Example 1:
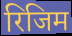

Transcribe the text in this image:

रिजिम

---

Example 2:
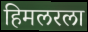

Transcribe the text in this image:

हिमलरला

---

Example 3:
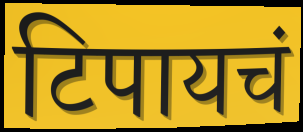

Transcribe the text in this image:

टिपायचं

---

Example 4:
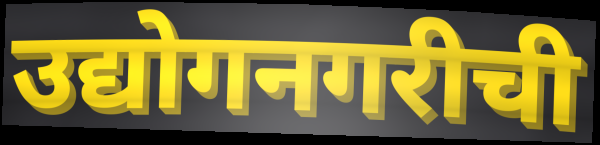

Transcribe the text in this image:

उद्योगनगरीची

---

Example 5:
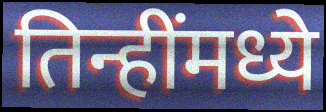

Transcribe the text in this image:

तिन्हींमध्ये